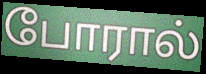
போரால்